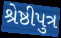
શ્રેષ્ઠીપુત્ર